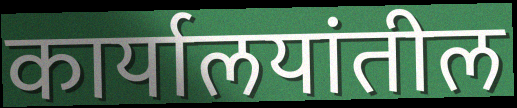
कार्यालयांतील